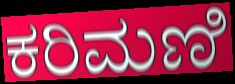
ಕರಿಮಣಿ